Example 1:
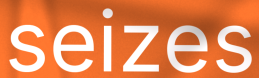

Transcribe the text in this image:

seizes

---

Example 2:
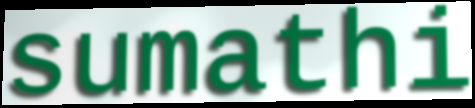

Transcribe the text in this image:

sumathi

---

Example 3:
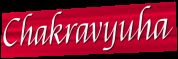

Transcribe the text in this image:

Chakravyuha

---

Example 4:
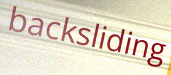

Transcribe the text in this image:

backsliding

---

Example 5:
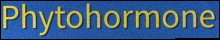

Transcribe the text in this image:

Phytohormone